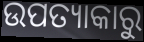
ଉପତ୍ୟାକାରୁ